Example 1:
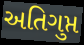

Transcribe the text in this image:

અતિગુપ્ત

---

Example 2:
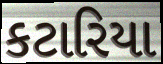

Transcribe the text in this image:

કટારિયા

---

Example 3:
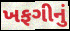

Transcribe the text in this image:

ખફગીનું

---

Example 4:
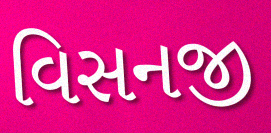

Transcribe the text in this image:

વિસનજી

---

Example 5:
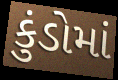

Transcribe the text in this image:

કુંડોમાં